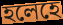
হলেহে